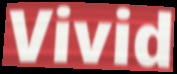
Vivid